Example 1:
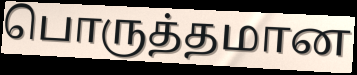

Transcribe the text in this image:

பொருத்தமான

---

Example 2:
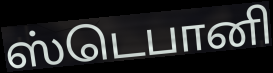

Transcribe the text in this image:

ஸ்டெபானி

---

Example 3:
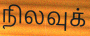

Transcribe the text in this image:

நிலவுக்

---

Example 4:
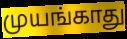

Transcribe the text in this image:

முயங்காது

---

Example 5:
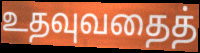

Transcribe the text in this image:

உதவுவதைத்